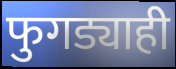
फुगड्याही